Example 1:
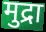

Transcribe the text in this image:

मुद्रा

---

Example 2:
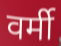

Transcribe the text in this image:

वर्मी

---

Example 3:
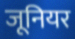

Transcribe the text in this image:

जूनियर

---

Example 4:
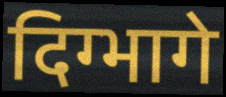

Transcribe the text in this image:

दिग्भागे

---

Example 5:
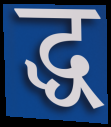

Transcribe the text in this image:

द्ध